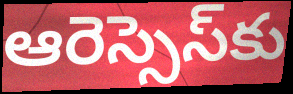
ఆరెస్సెస్‌కు